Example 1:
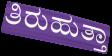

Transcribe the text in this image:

ತಿರುಹುತ್ತಾ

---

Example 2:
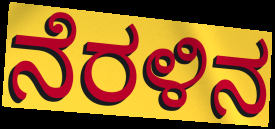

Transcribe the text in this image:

ನೆರಳಿನ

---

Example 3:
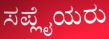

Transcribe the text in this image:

ಸಪ್ಲೈಯರು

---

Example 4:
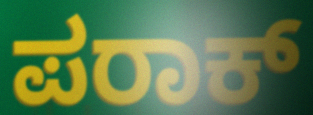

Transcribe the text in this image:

ಪರಾಕ್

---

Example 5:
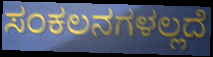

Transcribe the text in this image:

ಸಂಕಲನಗಳಲ್ಲದೆ